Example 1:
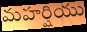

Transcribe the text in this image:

మహర్షియు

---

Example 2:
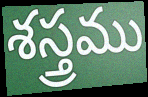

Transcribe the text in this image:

శస్త్రము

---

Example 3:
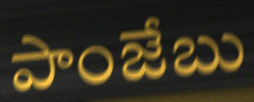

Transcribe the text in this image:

పాంజేబు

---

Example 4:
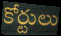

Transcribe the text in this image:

కోర్టులు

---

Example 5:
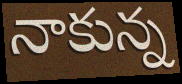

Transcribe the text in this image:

నాకున్న